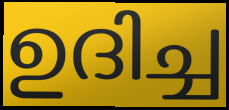
ഉദിച്ച